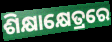
ଶିକ୍ଷାକ୍ଷେତ୍ରରେ